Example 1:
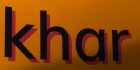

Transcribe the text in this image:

khar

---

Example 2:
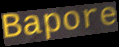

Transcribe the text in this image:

Bapore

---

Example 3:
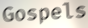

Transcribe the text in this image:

Gospels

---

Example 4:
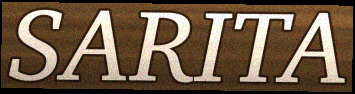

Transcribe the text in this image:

SARITA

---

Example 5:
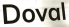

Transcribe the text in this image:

Doval